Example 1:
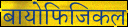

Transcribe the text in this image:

बायोफिजिकल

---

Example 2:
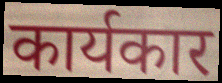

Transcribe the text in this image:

कार्यकार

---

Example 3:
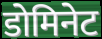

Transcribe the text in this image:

डोमिनेट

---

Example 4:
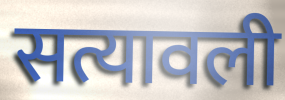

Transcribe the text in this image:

सत्यावली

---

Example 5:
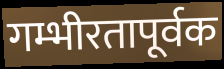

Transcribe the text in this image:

गम्भीरतापूर्वक